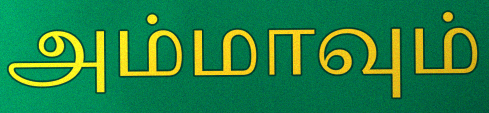
அம்மாவும்